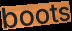
boots